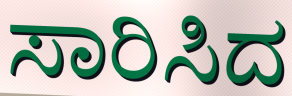
ಸಾರಿಸಿದ